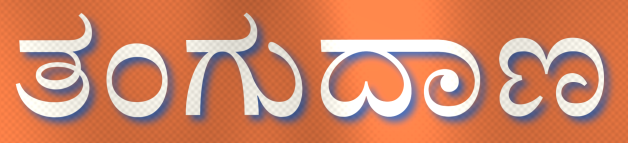
ತಂಗುದಾಣ